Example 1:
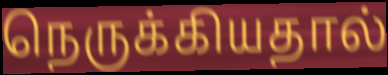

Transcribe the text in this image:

நெருக்கியதால்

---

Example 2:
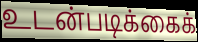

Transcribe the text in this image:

உடன்படிக்கைக்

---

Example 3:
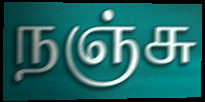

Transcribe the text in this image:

நஞ்சு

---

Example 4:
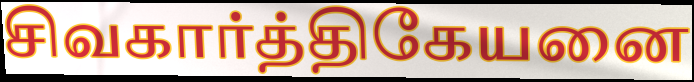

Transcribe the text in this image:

சிவகார்த்திகேயனை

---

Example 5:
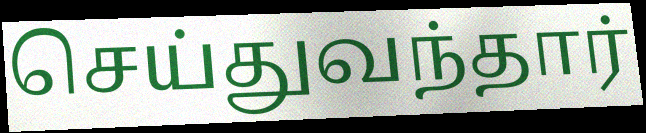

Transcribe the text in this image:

செய்துவந்தார்